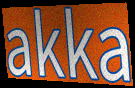
akka